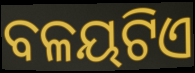
ବଳୟଟିଏ